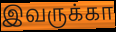
இவருக்கா